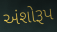
અંશોરૂપ